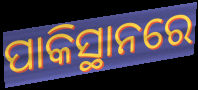
ପାକିସ୍ଥାନରେ